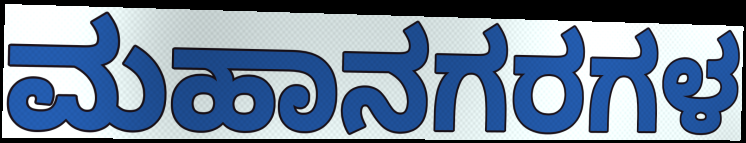
ಮಹಾನಗರಗಳ